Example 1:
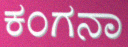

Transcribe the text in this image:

ಕಂಗನಾ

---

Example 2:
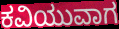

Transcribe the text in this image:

ಕವಿಯುವಾಗ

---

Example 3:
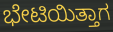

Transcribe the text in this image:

ಭೇಟಿಯಿತ್ತಾಗ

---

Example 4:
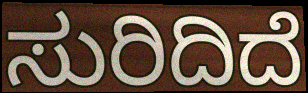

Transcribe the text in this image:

ಸುರಿದಿದೆ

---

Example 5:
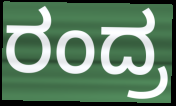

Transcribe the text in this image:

ರಂದ್ರ